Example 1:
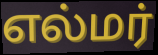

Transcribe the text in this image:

எல்மர்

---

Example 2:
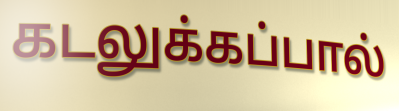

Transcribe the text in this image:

கடலுக்கப்பால்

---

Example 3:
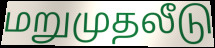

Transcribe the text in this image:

மறுமுதலீடு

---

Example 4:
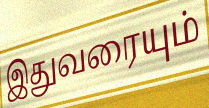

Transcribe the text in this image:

இதுவரையும்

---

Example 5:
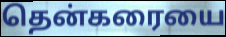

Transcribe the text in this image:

தென்கரையை